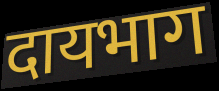
दायभाग